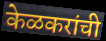
केळकरांची